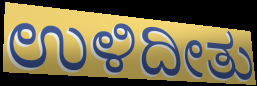
ಉಳಿದೀತು